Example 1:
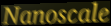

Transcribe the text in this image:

Nanoscale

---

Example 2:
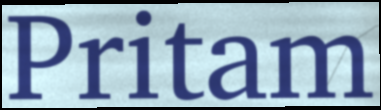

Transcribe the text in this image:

Pritam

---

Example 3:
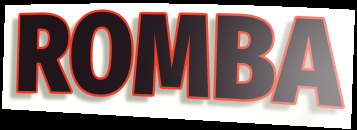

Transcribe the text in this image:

ROMBA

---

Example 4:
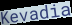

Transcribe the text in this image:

Kevadia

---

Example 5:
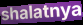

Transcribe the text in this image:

shalatnya